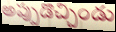
అప్పుడొచ్చిండు